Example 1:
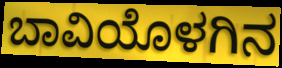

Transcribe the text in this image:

ಬಾವಿಯೊಳಗಿನ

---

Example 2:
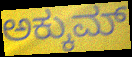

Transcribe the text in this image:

ಅಕ್ಕುಮ್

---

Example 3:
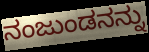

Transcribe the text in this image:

ನಂಜುಂಡನನ್ನು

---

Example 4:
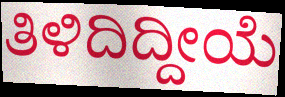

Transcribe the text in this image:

ತಿಳಿದಿದ್ದೀಯೆ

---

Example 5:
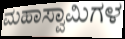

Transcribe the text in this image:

ಮಹಾಸ್ವಾಮಿಗಳ